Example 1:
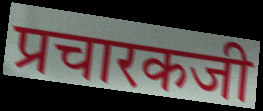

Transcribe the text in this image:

प्रचारकजी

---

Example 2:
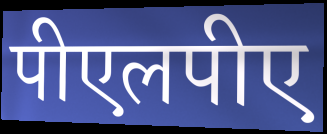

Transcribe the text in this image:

पीएलपीए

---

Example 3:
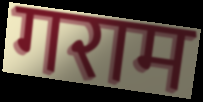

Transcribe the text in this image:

गराम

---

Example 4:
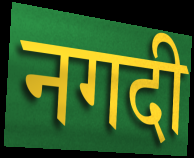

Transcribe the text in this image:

नगदी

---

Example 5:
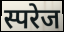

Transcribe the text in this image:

स्परेज